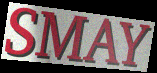
SMAY